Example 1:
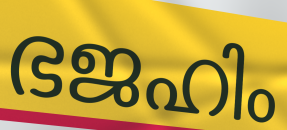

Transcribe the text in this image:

ഭജഹിം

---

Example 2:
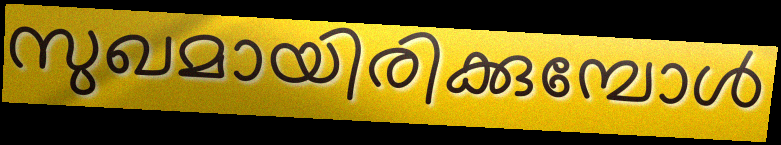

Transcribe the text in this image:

സുഖമായിരിക്കുമ്പോൾ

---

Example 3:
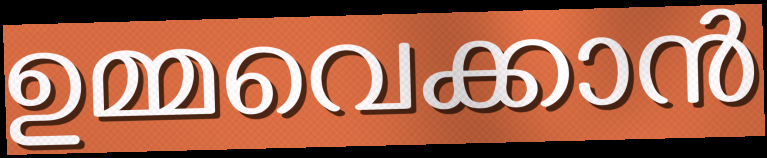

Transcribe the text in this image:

ഉമ്മവെക്കാൻ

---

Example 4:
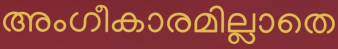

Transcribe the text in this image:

അംഗീകാരമില്ലാതെ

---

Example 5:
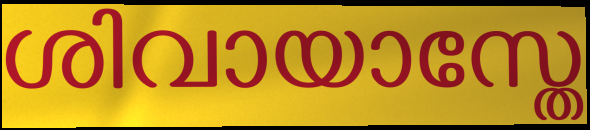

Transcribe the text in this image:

ശിവായാസ്തേ